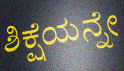
ಶಿಕ್ಷೆಯನ್ನೇ